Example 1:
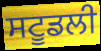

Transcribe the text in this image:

ਸਟੂਡਲੀ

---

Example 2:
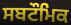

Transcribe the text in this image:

ਸਬਟੌਮਿਕ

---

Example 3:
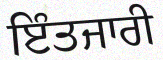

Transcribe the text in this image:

ਇੰਤਜਾਰੀ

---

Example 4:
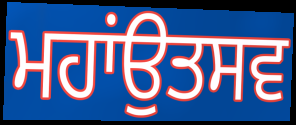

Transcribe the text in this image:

ਮਹਾਂਉਤਸਵ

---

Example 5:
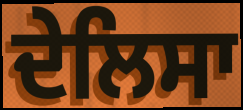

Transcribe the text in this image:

ਦੇਲਿਸਾ